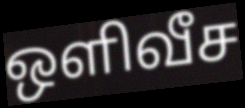
ஒளிவீச